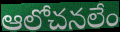
ఆలోచనలేం